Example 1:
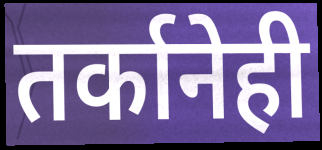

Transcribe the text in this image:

तर्कानेही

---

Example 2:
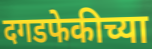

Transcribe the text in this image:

दगडफेकीच्या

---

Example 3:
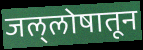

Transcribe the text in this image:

जल्लोषातून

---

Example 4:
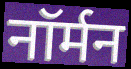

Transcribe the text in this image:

नॉर्मन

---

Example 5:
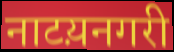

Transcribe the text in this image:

नाटय़नगरी